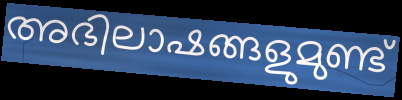
അഭിലാഷങ്ങളുമുണ്ട്